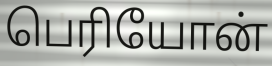
பெரியோன்